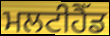
ਮਲਟੀਹੈੱਡ